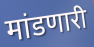
मांडणारी